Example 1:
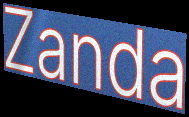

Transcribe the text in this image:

Zanda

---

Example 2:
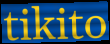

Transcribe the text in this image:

tikito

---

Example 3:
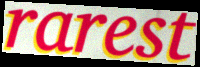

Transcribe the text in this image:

rarest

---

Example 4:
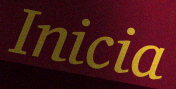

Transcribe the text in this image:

Inicia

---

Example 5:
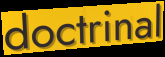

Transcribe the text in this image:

doctrinal